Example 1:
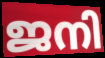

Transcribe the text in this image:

ജനി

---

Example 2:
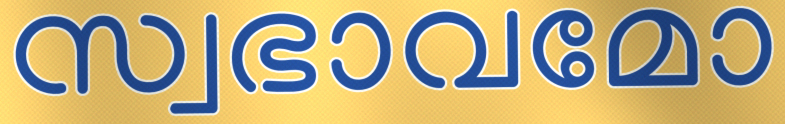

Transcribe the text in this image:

സ്വഭാവമോ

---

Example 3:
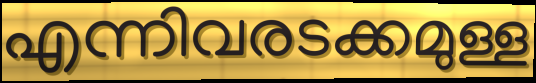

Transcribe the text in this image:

എന്നിവരടക്കമുള്ള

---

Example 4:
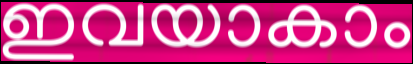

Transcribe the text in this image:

ഇവയാകാം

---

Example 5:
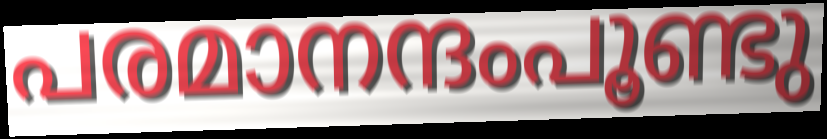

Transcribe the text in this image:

പരമാനന്ദംപൂണ്ടു